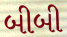
બીબી